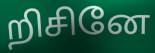
றிசினே